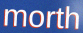
morth